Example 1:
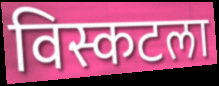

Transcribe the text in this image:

विस्कटला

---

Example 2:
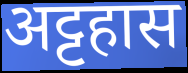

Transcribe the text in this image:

अट्टहास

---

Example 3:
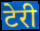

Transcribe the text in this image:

टेरी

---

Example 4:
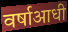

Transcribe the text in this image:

वर्षाआधी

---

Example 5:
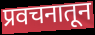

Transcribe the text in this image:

प्रवचनातून